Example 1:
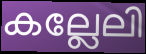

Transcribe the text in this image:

കല്ലേലി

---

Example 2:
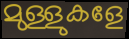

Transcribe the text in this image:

മുള്ളുകളേ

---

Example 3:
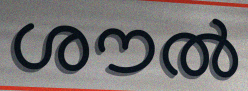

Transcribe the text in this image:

ശൗൽ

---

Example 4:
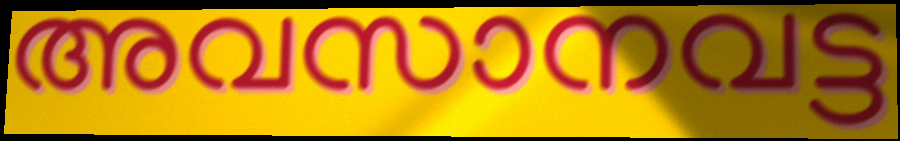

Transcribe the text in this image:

അവസാനവട്ട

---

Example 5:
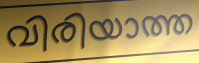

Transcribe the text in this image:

വിരിയാത്ത